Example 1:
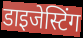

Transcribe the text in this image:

डाइजेस्टिंग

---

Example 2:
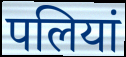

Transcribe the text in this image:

पलियां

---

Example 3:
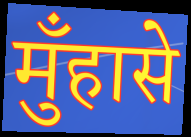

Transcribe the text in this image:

मुँहासे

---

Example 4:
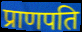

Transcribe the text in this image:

प्राणपति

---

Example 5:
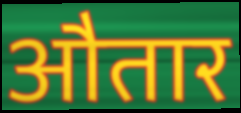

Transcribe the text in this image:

औतार